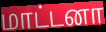
மாட்டனா